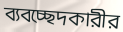
ব্যবচ্ছেদকারীর